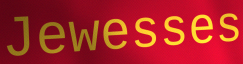
Jewesses